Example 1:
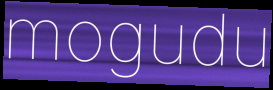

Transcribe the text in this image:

mogudu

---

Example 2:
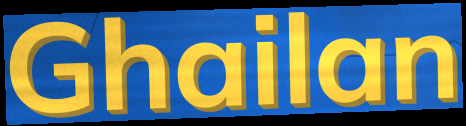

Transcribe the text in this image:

Ghailan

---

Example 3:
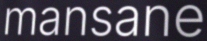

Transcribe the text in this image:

mansane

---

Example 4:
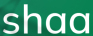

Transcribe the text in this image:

shaa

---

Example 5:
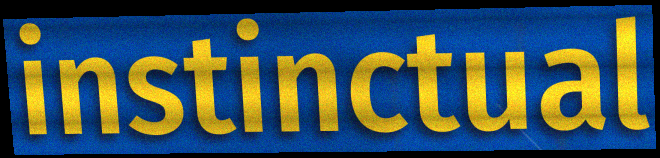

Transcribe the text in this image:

instinctual